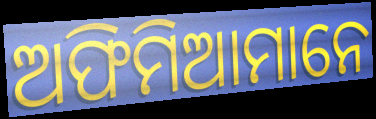
ଅଫିମିଆମାନେ